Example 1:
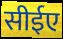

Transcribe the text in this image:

सीईए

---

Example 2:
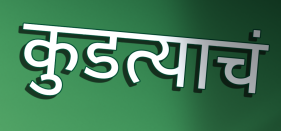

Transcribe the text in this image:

कुडत्याचं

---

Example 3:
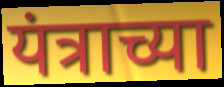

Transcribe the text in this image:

यंत्राच्या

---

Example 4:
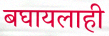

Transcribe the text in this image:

बघायलाही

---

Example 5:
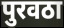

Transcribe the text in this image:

पुरवठा